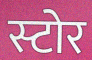
स्‍टोर